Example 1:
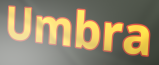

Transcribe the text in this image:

Umbra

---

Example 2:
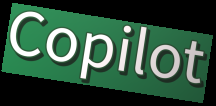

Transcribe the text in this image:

Copilot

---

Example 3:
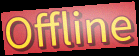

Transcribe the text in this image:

Offline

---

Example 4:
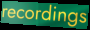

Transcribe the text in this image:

recordings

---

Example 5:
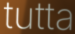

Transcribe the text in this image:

tutta